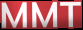
MMT